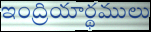
ఇంద్రియార్థములు